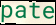
pate